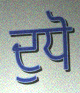
ਦੁਧੋ